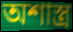
অশাস্ত্র